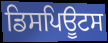
ਡਿਸਪਿਊਟਸ